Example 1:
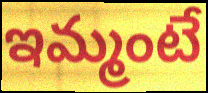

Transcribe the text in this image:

ఇమ్మంటే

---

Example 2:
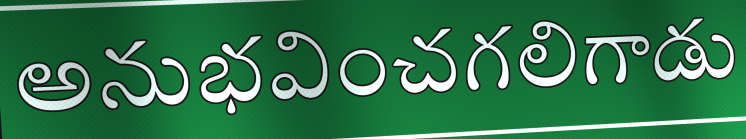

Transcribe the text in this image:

అనుభవించగలిగాడు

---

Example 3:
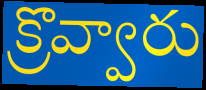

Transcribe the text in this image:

క్రొవ్వారు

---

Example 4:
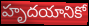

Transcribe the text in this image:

హృదయానికో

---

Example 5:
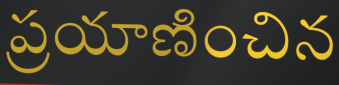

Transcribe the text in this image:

ప్రయాణించిన